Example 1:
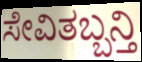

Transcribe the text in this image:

ಸೇವಿತಬ್ಬನ್ತಿ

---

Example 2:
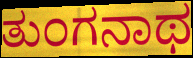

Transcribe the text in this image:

ತುಂಗನಾಥ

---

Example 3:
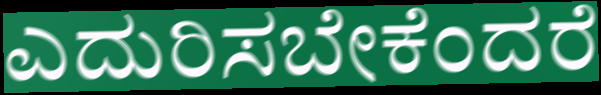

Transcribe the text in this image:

ಎದುರಿಸಬೇಕೆಂದರೆ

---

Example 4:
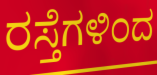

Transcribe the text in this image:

ರಸ್ತೆಗಳಿಂದ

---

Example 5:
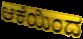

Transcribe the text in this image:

ಆಕೆಯಿಂದ